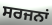
ਸਰਜਨਾਂ